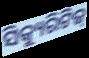
ସିକ୍ୟୁରିଟିଜ୍